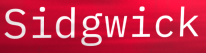
Sidgwick